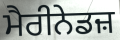
ਮੈਰੀਨੇਡਜ਼